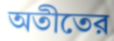
অতীতের